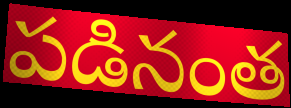
పడినంత